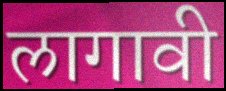
लागावी